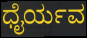
ಧೈರ್ಯವ